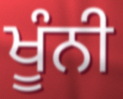
ਖੂੰਨੀ